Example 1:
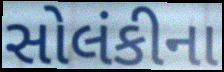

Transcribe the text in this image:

સોલંકીના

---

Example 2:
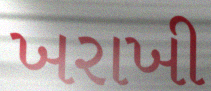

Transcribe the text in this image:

ખરાખી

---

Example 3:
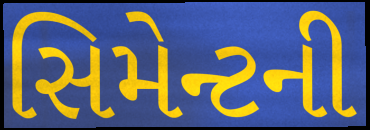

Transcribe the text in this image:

સિમેન્ટની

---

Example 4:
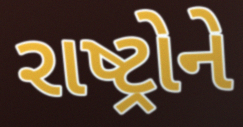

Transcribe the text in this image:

રાષ્ટ્રોને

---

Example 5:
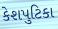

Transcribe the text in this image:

કેશપુટિકા